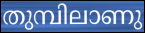
തുമ്പിലാണു